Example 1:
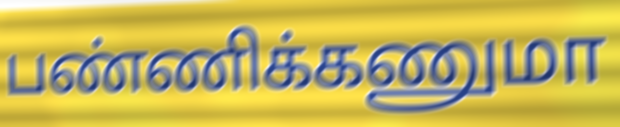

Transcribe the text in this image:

பண்ணிக்கணுமா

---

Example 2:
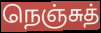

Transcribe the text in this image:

நெஞ்சுத்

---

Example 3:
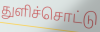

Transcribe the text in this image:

துளிச்சொட்டு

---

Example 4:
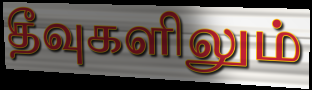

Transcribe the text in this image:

தீவுகளிலும்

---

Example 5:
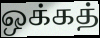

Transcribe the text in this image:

ஒக்கத்